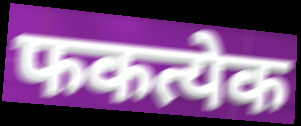
फकत्येक